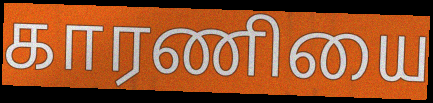
காரணியை